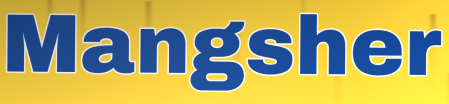
Mangsher